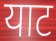
याट